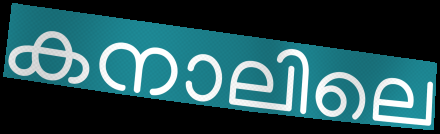
കനാലിലെ